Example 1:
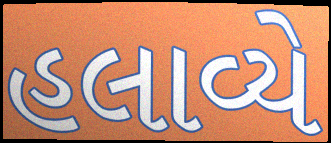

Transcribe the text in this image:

હલાવ્યે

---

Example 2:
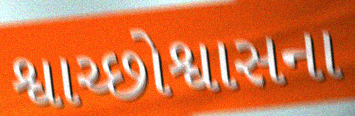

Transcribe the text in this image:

શ્વાચ્છોશ્વાસના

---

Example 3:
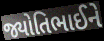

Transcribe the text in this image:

જ્યોતિભાઈને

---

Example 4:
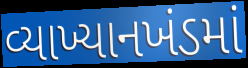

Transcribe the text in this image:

વ્યાખ્યાનખંડમાં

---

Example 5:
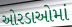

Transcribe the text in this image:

ઓરડાઓમાં